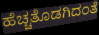
ಹೆಚ್ಚತೊಡಗಿದಂತೆ